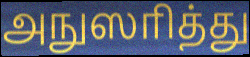
அநுஸரித்து